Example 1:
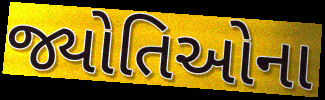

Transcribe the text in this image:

જ્યોતિઓના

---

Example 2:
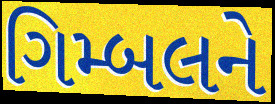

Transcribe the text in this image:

ગિમ્બલને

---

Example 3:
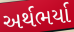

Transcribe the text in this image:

અર્થભર્યા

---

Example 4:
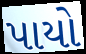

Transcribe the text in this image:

પાયો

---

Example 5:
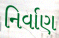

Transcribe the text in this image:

નિર્વાણ